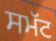
ਸਮੱਟ